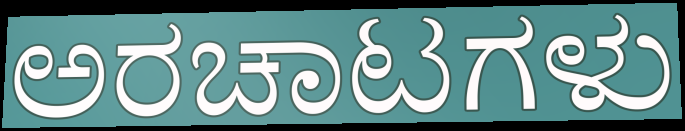
ಅರಚಾಟಗಳು